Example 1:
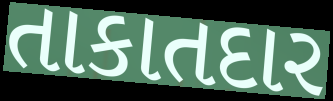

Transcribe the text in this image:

તાકાતદાર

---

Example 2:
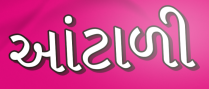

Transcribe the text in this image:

આંટાળી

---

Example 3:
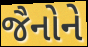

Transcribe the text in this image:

જૈનોને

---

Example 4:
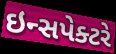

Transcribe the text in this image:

ઇન્સપેક્ટરે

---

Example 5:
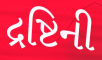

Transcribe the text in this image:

દ્રષ્ટિની